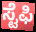
ಸ್ಟೆಫಿ